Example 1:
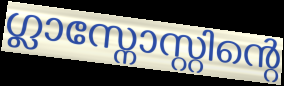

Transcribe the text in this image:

ഗ്ലാസ്നോസ്റ്റിന്റെ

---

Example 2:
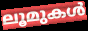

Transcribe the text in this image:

ലൂമുകൾ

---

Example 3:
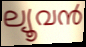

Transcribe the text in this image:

ല്യൂവൻ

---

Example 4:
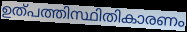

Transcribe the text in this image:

ഉത്പത്തിസ്ഥിതികാരണം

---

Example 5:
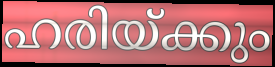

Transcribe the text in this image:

ഹരിയ്ക്കും